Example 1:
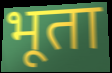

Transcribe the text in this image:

भूता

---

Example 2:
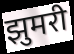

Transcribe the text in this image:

झुमरी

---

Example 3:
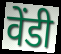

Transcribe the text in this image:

वेंडी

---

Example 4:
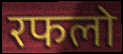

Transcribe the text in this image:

रफलो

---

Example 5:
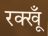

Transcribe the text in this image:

रक्खूँ